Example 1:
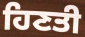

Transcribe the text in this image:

ਹਿਣਤੀ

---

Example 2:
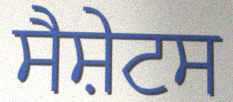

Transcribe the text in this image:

ਸੈਸ਼ੇਟਸ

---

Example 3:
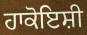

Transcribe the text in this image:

ਹਾਕੋਇਸ਼ੀ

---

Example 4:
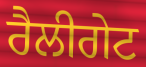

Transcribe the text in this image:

ਰੈਲੀਗੇਟ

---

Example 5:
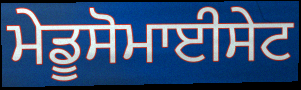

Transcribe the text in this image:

ਮੇਡੂਸੋਮਾਈਸੇਟ